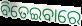
ବିତେଇବାରେ